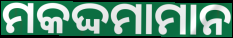
ମକଦ୍ଦମାମାନ